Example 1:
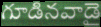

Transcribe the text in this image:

గూడినవాడై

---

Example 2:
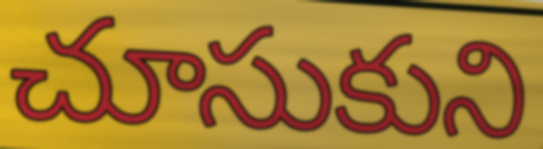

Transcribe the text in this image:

చూసుకుని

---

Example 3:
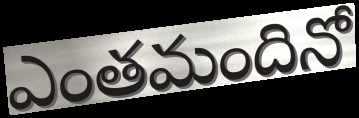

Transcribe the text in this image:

ఎంతమందినో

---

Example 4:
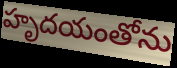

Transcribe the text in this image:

హృదయంతోను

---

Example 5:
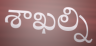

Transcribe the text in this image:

శాఖల్ని